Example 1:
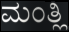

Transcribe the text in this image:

ಮಂತ್ಲಿ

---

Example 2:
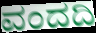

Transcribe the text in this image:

ವಂದದಿ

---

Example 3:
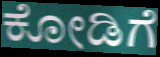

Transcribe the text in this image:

ಕೋಡಿಗೆ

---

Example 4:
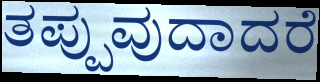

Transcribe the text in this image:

ತಪ್ಪುವುದಾದರೆ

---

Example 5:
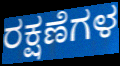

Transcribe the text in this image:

ರಕ್ಷಣೆಗಳ